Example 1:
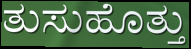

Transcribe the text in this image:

ತುಸುಹೊತ್ತು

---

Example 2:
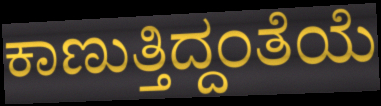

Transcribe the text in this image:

ಕಾಣುತ್ತಿದ್ದಂತೆಯೆ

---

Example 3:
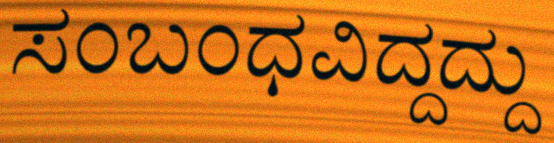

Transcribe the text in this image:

ಸಂಬಂಧವಿದ್ದದ್ದು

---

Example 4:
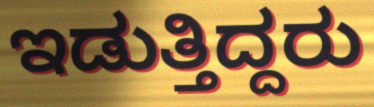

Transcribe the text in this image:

ಇಡುತ್ತಿದ್ದರು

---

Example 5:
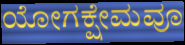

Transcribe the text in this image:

ಯೋಗಕ್ಷೇಮವೂ